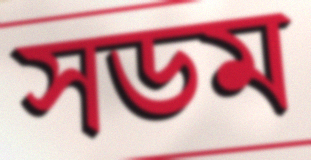
সডম